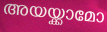
അയയ്ക്കാമോ